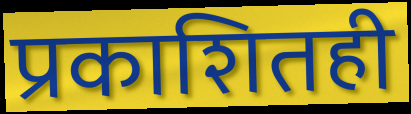
प्रकाशितही